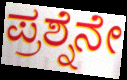
ಪ್ರಶ್ನೆನೇ